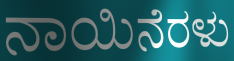
ನಾಯಿನೆರಳು